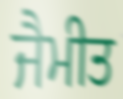
ਜੈਮੀਤ